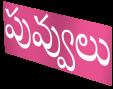
పువ్వులు